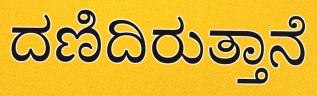
ದಣಿದಿರುತ್ತಾನೆ